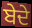
ਬੇਦੇ